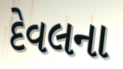
દેવલના